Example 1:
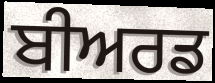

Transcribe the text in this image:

ਬੀਅਰਡ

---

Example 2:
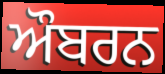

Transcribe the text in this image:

ਔਬਰਨ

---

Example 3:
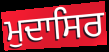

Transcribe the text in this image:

ਮੁਦਾਸਿਰ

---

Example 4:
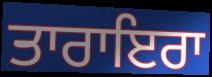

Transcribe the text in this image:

ਤਾਰਾਇਰਾ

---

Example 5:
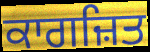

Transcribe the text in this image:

ਕਾਗਜ਼ਿਤ